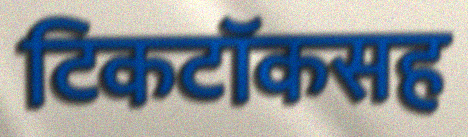
टिकटॉकसह